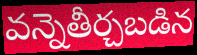
వన్నెతీర్చబడిన